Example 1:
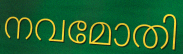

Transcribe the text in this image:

നവമോതി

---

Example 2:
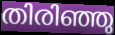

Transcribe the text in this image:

തിരിഞ്ഞു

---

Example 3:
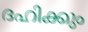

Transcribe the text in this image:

ദഹിക്കും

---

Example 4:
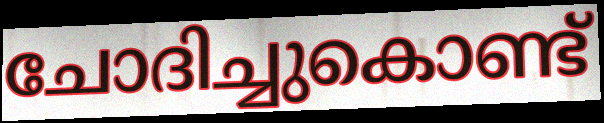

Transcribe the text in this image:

ചോദിച്ചുകൊണ്ട്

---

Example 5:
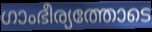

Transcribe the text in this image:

ഗാംഭീര്യത്തോടെ